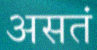
असतं